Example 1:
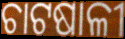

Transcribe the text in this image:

ଚାଟଷାଳୀ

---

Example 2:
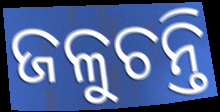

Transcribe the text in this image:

ଜଳୁଚନ୍ତି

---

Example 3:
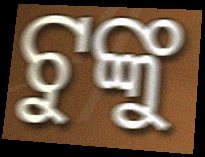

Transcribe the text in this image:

ଟୁଙ୍କୁ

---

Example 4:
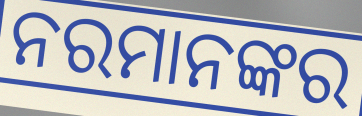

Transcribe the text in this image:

ନରମାନଙ୍କର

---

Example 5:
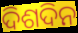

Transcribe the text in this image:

ଦିଶଦିନ